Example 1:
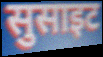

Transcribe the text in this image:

सुसाइट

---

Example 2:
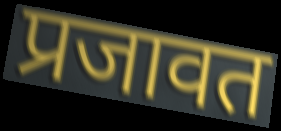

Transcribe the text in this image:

प्रजावत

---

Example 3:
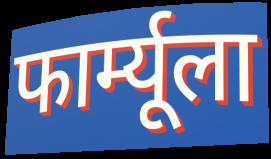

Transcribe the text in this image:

फार्म्यूला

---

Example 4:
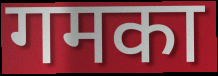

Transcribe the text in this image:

गमका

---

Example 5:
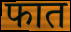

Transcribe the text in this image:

फात